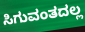
ಸಿಗುವಂತದಲ್ಲ